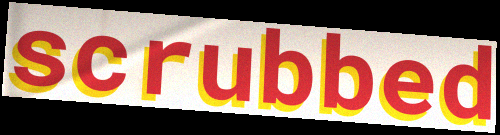
scrubbed